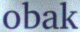
obak